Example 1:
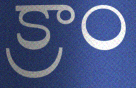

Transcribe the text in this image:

క్రాం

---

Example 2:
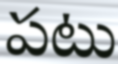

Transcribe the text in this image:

పటు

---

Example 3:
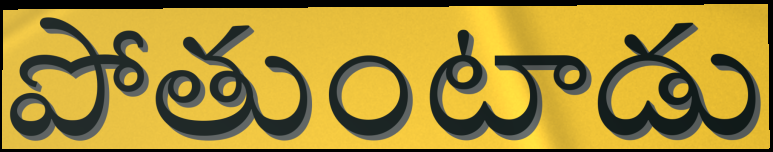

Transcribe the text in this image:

పోతుంటాడు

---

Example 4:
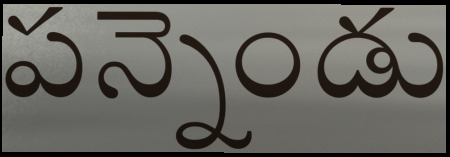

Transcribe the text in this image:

పన్నెండు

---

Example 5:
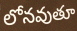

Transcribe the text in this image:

లోనవుతూ